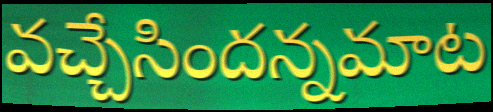
వచ్చేసిందన్నమాట